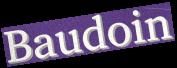
Baudoin